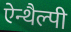
ऐन्थैल्पी